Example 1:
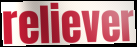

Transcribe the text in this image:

reliever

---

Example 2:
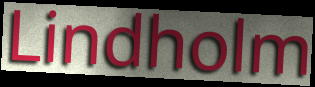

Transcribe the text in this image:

Lindholm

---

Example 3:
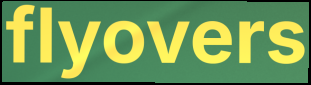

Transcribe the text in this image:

flyovers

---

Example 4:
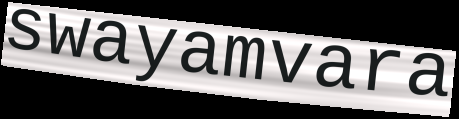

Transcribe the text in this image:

swayamvara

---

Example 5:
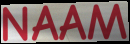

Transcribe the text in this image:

NAAM